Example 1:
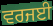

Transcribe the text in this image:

ਵਰਜਈ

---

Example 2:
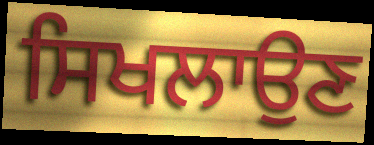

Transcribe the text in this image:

ਸਿਖਲਾਉਣ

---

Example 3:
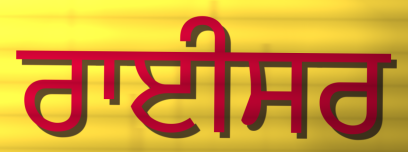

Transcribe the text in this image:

ਰਾਈਸਰ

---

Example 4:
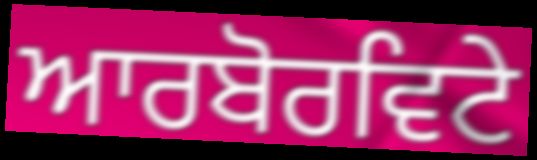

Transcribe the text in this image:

ਆਰਬੋਰਵਿਟੇ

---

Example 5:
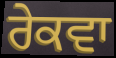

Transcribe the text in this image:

ਰੇਕਵਾ